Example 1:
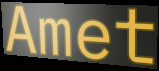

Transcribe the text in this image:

Amet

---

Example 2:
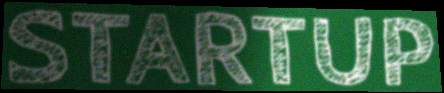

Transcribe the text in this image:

STARTUP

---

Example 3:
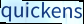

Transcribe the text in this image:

quickens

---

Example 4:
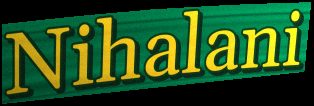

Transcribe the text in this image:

Nihalani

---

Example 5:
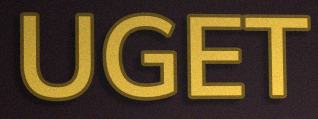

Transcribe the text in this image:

UGET